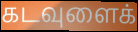
கடவுளைக்